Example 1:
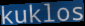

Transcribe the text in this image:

kuklos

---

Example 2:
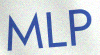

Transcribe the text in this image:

MLP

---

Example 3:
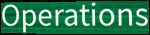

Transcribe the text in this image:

Operations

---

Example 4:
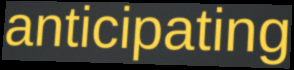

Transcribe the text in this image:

anticipating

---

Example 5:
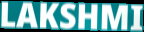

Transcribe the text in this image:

LAKSHMI